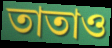
তাতাও